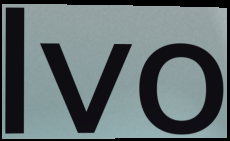
Ivo